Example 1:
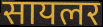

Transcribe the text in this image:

सायलर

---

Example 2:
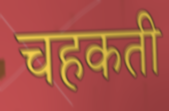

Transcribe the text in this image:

चहकती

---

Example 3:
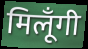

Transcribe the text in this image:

मिलूँगी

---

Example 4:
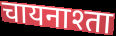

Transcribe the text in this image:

चायनाश्ता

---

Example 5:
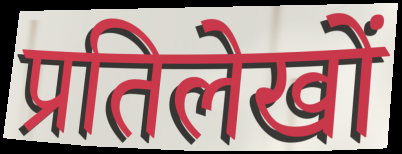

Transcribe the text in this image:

प्रतिलेखों